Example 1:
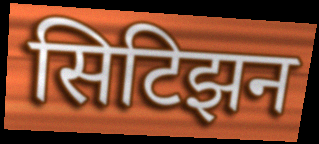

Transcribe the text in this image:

सिटिझन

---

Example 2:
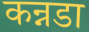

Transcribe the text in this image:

कन्नडा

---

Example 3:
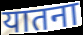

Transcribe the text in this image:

यातना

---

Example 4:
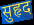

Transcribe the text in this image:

सुहृद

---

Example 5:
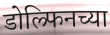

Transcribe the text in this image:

डोल्फिनच्या